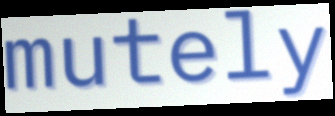
mutely